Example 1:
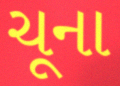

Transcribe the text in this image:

ચૂના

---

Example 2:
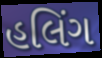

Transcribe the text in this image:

હલિંગ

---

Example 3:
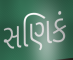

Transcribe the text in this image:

સણિકં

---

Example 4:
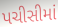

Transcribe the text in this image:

પચીસીમાં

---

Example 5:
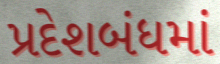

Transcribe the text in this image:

પ્રદેશબંધમાં